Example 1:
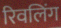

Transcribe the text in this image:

रिवलिंग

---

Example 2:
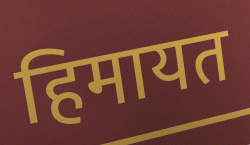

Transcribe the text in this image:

हिमायत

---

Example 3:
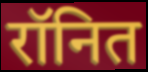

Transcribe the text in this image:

रॉनित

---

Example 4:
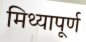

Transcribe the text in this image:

मिथ्यापूर्ण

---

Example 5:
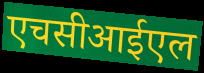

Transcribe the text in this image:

एचसीआईएल